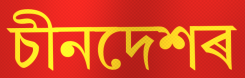
চীনদেশৰ